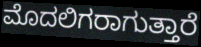
ಮೊದಲಿಗರಾಗುತ್ತಾರೆ